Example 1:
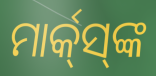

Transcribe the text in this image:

ମାର୍କ୍‌ସ୍‌ଙ୍କ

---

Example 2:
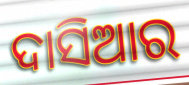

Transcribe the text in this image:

ଦାସିଆର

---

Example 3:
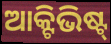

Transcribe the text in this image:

ଆକ୍ଟିଭିଷ୍ଟ୍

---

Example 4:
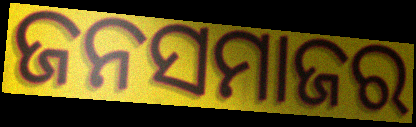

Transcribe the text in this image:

ଜନସମାଜର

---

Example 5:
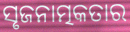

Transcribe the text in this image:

ସୃଜନାତ୍ମକତାର